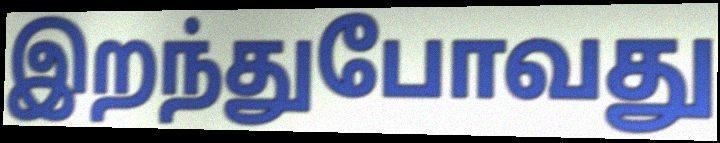
இறந்துபோவது